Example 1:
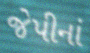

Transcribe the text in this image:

જેપીનાં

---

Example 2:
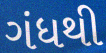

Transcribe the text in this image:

ગંધથી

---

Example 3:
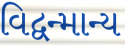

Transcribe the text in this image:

વિદ્વન્માન્ય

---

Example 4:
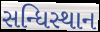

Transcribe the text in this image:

સન્ધિસ્થાન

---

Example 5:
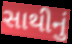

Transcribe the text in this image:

સાથીનું